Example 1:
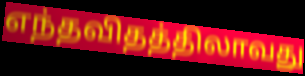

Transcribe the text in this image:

எந்தவிதத்திலாவது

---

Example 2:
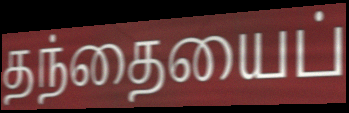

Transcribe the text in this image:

தந்தையைப்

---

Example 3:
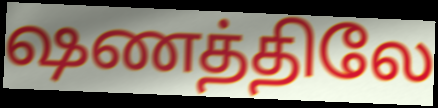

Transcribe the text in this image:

ஷணத்திலே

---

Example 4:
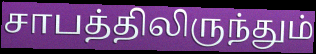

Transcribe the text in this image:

சாபத்திலிருந்தும்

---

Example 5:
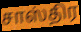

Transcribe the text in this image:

சாஸ்திர